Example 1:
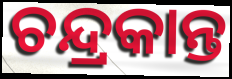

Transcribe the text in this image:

ଚନ୍ଦ୍ରକାନ୍ତ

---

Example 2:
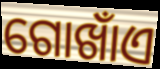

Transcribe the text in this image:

ଗୋଖାଁଏ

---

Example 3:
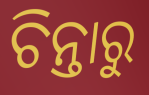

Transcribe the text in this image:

ଚିନ୍ତାରୁ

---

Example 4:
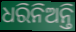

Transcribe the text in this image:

ଧରିନିଅନ୍ତି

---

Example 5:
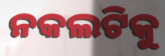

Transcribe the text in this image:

ନକଲଟିକୁ